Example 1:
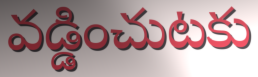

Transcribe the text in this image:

వడ్డించుటకు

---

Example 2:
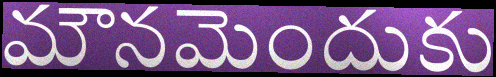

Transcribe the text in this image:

మౌనమెందుకు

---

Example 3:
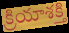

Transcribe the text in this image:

క్రియాశక్తి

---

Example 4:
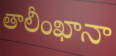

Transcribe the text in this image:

తాలీంఖానా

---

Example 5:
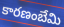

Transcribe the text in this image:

కారణంబేమి